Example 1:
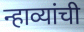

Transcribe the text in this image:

न्हाव्यांची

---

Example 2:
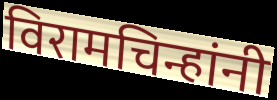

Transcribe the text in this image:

विरामचिन्हांनी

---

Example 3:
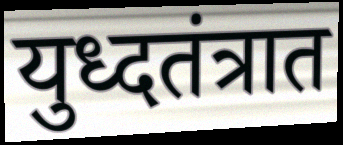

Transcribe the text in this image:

युध्दतंत्रात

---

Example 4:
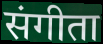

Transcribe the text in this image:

संगीता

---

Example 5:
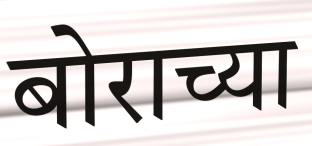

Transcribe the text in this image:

बोराच्या